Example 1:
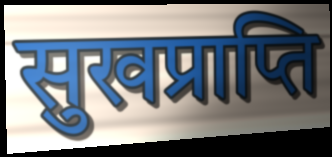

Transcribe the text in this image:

सुखप्राप्ति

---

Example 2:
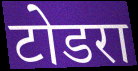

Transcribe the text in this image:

टोडरा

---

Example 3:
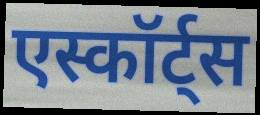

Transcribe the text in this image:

एस्कॉर्ट्स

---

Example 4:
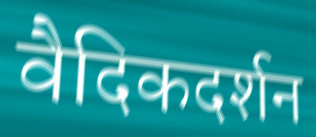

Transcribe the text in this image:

वैदिकदर्शन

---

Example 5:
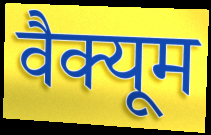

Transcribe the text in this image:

वैक्यूम